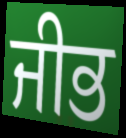
ਜੀਭ